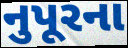
નુપૂરના